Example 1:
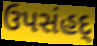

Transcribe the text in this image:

ઉપસંહદ્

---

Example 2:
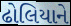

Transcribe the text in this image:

ઢોલિયાને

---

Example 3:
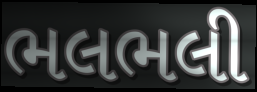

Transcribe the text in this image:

ભલભલી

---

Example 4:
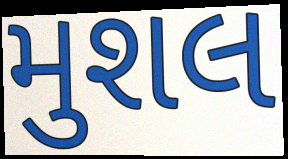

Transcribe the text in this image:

મુશલ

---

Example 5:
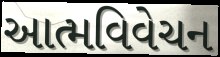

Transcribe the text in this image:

આત્મવિવેચન